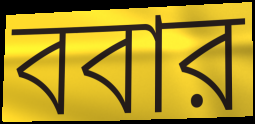
ববার